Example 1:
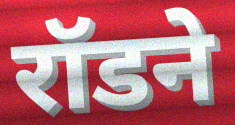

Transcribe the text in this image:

रॉडने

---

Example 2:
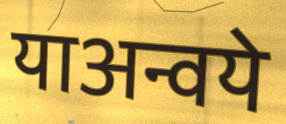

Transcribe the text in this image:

याअन्वये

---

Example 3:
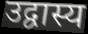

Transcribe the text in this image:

उद्वास्य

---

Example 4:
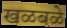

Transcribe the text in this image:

खळबळे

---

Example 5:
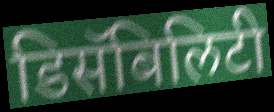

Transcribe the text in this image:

डिसॅबिलिटी